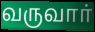
வருவார்